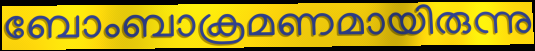
ബോംബാക്രമണമായിരുന്നു